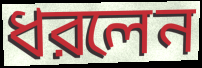
ধরলেন